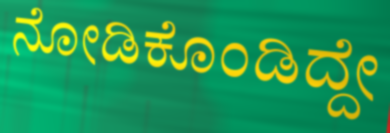
ನೋಡಿಕೊಂಡಿದ್ದೇ